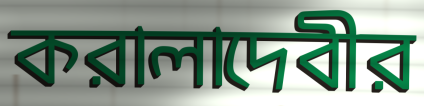
করালাদেবীর